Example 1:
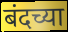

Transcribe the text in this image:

बंदच्या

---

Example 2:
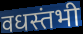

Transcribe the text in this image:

वधस्तंभी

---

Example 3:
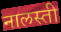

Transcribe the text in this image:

नालस्ती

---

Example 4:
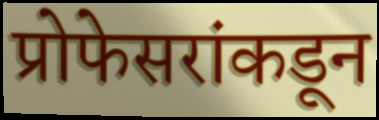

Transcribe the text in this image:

प्रोफेसरांकडून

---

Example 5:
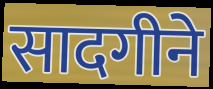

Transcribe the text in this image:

सादगीने